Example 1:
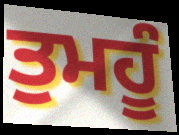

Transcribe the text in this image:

ਤੁਮਹੂੰ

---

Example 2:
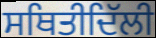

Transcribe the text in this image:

ਸਥਿਤੀਦਿੱਲੀ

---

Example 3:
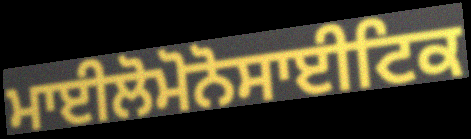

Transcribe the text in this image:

ਮਾਈਲੋਮੋਨੋਸਾਈਟਿਕ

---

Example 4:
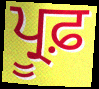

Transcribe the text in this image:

ਪ੍ਰੂਫ਼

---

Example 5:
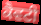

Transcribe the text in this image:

ਕੈਵਟੀ